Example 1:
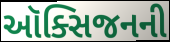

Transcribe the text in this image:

ઑક્સિજનની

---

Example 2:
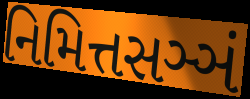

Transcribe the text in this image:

નિમિત્તસઞ્ઞં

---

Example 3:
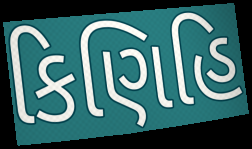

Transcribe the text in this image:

કિણિહિ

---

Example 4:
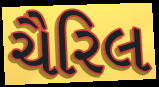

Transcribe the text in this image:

ચૈરિલ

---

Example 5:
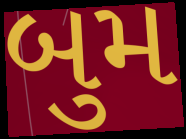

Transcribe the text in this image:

બુમ